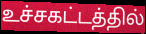
உச்சகட்டத்தில்